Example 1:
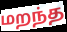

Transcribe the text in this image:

மறந்த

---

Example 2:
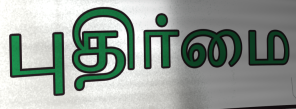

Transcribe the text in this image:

புதிர்மை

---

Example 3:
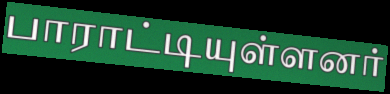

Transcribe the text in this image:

பாராட்டியுள்ளனர்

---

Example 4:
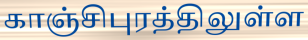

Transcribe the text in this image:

காஞ்சிபுரத்திலுள்ள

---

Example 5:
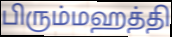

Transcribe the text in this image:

பிரும்மஹத்தி